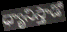
ధ్యానిస్తాడో